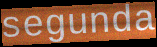
segunda